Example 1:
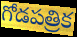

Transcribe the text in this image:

గోడపత్రిక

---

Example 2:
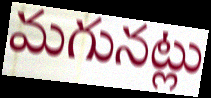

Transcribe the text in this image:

మగునట్లు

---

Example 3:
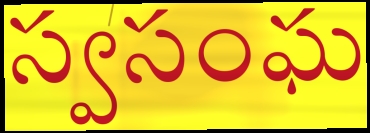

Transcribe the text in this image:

స్వసంఘ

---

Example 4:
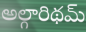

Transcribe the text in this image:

అల్గారిథమ్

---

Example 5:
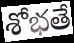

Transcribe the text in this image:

శోభతే